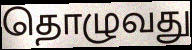
தொழுவது